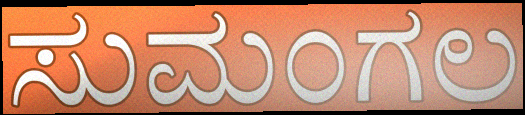
ಸುಮಂಗಲ